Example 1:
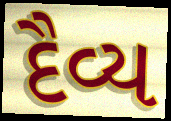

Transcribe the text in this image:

દૈવ્ય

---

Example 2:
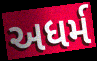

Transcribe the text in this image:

અધર્મ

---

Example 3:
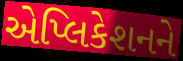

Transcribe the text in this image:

એપ્લિકેશનને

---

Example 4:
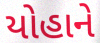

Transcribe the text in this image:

યોહાને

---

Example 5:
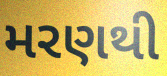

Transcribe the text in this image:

મરણથી